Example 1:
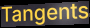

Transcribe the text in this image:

Tangents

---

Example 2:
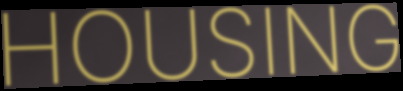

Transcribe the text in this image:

HOUSING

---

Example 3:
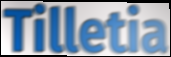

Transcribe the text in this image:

Tilletia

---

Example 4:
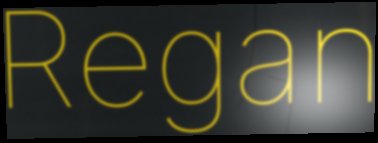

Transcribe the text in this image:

Regan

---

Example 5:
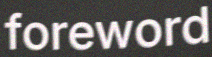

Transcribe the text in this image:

foreword